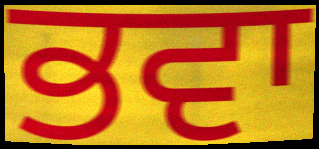
ਭਵਾ